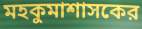
মহকুমাশাসকের